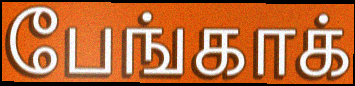
பேங்காக்